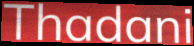
Thadani